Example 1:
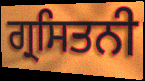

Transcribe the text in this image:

ਗ੍ਰਸਿਤਨੀ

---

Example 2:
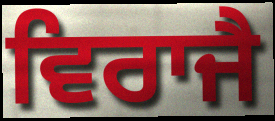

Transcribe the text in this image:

ਵਿਰਾਜੈ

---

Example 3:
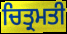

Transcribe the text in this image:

ਚਿਤ੍ਰਮਤੀ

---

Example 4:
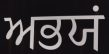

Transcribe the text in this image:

ਅਭਯਂ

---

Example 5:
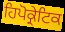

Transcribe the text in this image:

ਹਿਪੋਕ੍ਰੇਟਿਕ